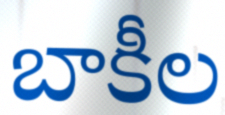
బాకీల